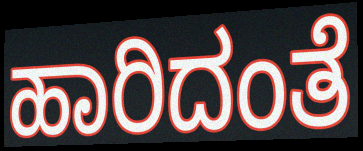
ಹಾರಿದಂತೆ